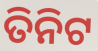
ତିନିଟ